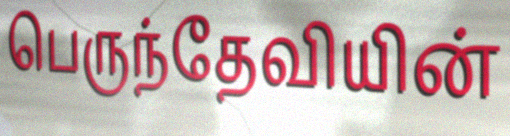
பெருந்தேவியின்